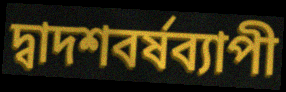
দ্বাদশবর্ষব্যাপী